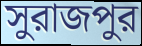
সুরাজপুর